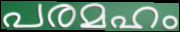
പരമഹം